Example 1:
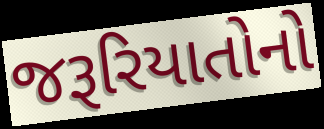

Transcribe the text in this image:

જરૂરિયાતોનો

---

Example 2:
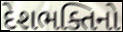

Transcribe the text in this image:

દેશભક્તિનો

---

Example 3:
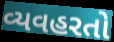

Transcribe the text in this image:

વ્યવહરતો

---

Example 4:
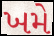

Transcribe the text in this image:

ખમે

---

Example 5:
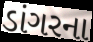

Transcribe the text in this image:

ડાંગરના